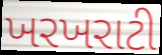
ખરખરાટી